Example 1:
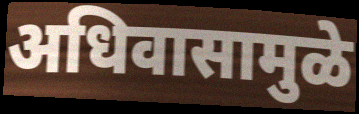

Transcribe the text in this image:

अधिवासामुळे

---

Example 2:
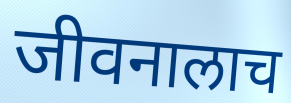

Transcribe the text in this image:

जीवनालाच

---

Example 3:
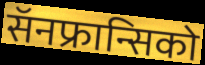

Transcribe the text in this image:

सॅनफ्रान्सिको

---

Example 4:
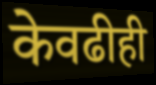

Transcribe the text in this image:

केवढीही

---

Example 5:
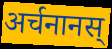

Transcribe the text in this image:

अर्चनानस्